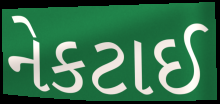
નેકટાઈ